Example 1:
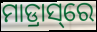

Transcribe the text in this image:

ମାଡ୍ରାସ୍‌ରେ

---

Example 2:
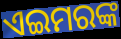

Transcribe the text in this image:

ଏଇମରଙ୍କ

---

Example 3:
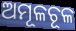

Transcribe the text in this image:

ଅମୂଳଚୂଳ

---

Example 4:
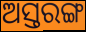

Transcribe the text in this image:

ଅସ୍ତରଙ୍ଗ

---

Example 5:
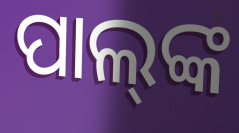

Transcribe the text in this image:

ପାଲ୍‌ଙ୍କ